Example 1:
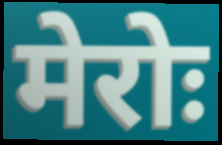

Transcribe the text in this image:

मेरोः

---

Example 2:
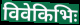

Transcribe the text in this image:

विवेकिभिः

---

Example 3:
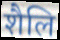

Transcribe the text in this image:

शैलि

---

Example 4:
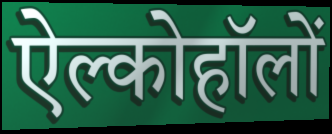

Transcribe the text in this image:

ऐल्कोहॉलों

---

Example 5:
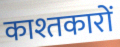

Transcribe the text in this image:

काश्तकारों